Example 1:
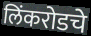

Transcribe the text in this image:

लिंकरोडचे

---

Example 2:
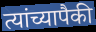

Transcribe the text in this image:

त्यांच्यापैकी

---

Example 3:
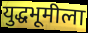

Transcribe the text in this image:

युद्धभूमीला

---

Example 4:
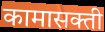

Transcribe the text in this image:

कामासक्ती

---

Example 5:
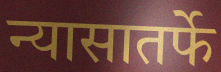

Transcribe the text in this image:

न्यासातर्फे